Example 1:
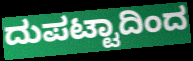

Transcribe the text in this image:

ದುಪಟ್ಟಾದಿಂದ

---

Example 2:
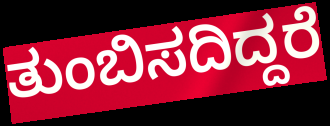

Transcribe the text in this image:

ತುಂಬಿಸದಿದ್ದರೆ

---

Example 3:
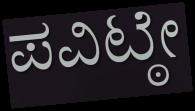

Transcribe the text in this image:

ಪವಿಟ್ಠೇ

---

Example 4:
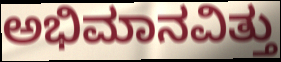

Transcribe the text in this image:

ಅಭಿಮಾನವಿತ್ತು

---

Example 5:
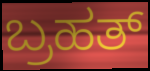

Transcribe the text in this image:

ಬ್ರಹತ್